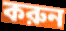
করুন